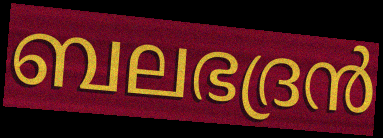
ബലഭദ്രൻ